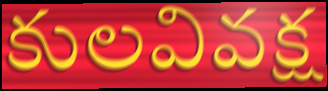
కులవివక్ష